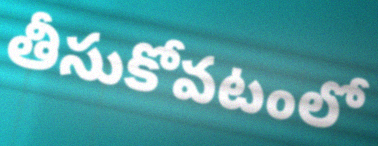
తీసుకోవటంలో